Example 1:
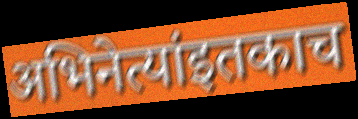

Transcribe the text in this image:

अभिनेत्यांइतकाच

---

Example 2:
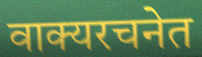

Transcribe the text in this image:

वाक्यरचनेत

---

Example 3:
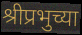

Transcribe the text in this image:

श्रीप्रभुच्या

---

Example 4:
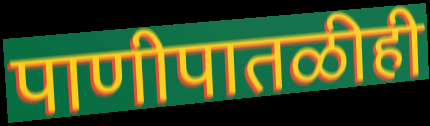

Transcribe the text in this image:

पाणीपातळीही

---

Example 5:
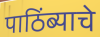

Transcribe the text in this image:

पाठिंब्याचे